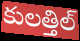
కులత్తిల్